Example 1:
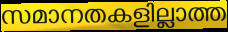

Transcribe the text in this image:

സമാനതകളില്ലാത്ത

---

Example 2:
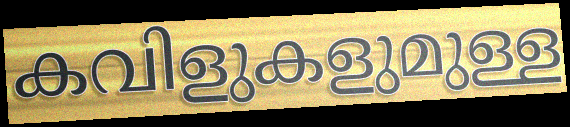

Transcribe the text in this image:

കവിളുകളുമുള്ള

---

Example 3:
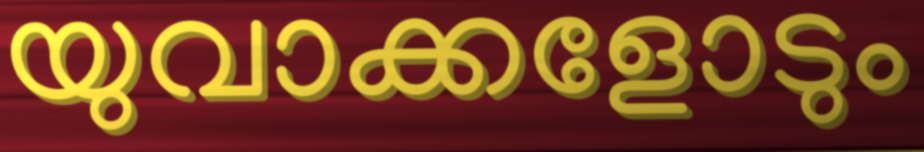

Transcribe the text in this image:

യുവാക്കളോടും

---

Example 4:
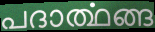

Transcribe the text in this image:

പദാൎത്ഥങ്ങ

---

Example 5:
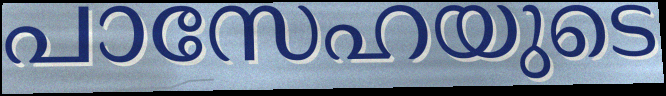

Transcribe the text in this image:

പാസേഹയുടെ